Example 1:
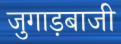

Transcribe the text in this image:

जुगाड़बाजी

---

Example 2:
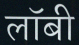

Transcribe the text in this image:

लॉबी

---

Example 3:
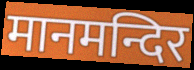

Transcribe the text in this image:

मानमन्दिर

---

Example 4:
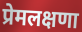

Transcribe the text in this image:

प्रेमलक्षणा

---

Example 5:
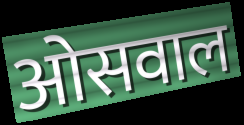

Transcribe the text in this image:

ओसवाल